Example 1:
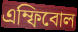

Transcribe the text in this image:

এম্ফিবোল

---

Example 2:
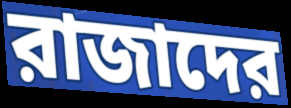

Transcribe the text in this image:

রাজাদের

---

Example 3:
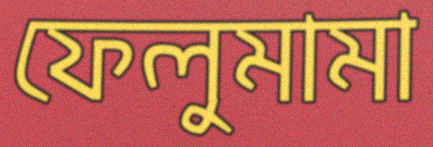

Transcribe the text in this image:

ফেলুমামা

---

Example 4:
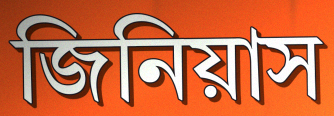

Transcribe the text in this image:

জিনিয়াস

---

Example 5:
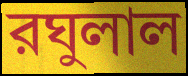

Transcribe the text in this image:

রঘুলাল